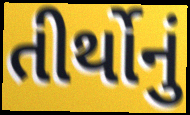
તીર્થોનું